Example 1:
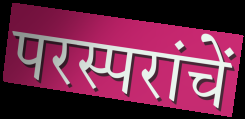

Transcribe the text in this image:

परस्परांचें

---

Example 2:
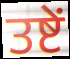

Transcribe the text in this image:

उष्टें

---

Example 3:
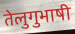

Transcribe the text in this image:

तेलुगुभाषी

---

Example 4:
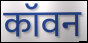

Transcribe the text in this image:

कॉवन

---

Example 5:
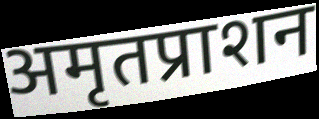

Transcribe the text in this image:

अमृतप्राशन